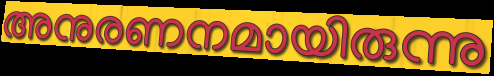
അനുരണനമായിരുന്നു